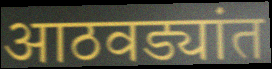
आठवड्यांत